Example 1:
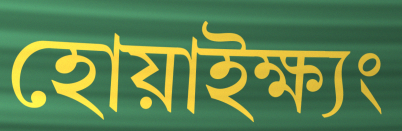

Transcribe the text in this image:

হোয়াইক্ষ্যং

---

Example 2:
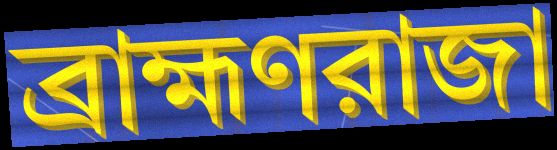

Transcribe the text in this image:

ব্রাহ্মণরাজা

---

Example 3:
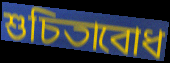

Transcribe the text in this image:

শুচিতাবোধ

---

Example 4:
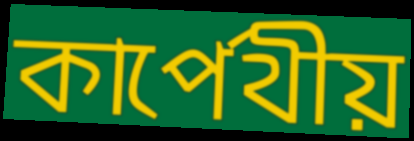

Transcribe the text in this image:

কার্পেথীয়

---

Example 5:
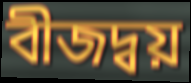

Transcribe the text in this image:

বীজদ্বয়